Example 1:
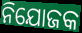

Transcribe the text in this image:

ନିଯୋଜକ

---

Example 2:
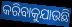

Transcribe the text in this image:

କରିବାକୁଯାଉଛି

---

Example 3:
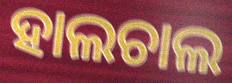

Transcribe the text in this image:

ହାଲଚାଲ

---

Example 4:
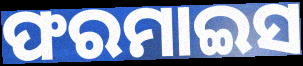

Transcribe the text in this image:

ଫରମାଇସ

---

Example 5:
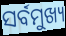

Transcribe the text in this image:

ସର୍ବମୁଖ୍ୟ